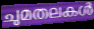
ചുമതലകൾ